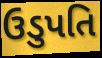
ઉડુપતિ